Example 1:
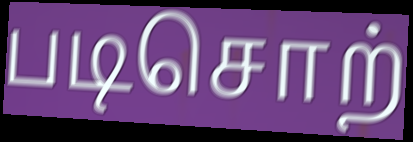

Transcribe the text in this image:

படிசொற்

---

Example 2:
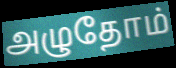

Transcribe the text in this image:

அழுதோம்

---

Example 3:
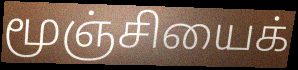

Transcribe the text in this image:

மூஞ்சியைக்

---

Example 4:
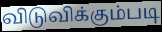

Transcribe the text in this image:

விடுவிக்கும்படி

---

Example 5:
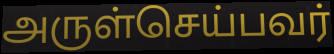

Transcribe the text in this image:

அருள்செய்பவர்